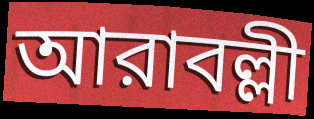
আরাবল্লী